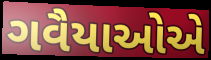
ગવૈયાઓએ